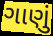
ગાણું